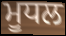
ਮੂਧਲ